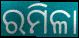
ରମିଳା